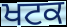
ਖਟਕ